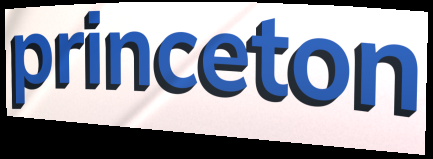
princeton